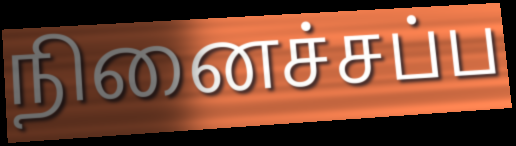
நினைச்சப்ப